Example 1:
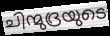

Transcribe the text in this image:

ചിന്മുദ്രയുടെ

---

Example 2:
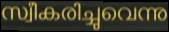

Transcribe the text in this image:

സ്വീകരിച്ചുവെന്നു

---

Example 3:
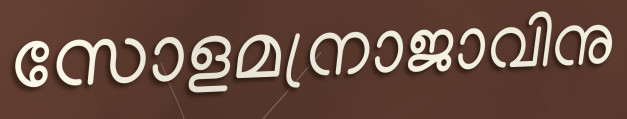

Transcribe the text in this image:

സോളമന്രാജാവിനു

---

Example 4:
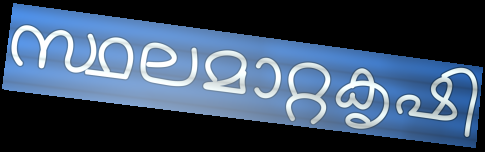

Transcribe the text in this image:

സ്ഥലമാറ്റകൃഷി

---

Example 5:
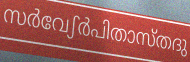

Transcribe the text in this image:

സർവേഽർപിതാസ്തദു